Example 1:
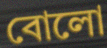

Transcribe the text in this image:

বোলো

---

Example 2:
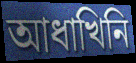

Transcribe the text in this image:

আধাখিনি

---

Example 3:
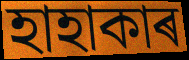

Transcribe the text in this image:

হাহাকাৰ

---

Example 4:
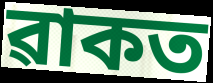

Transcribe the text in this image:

ৱাকত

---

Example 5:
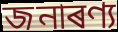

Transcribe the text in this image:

জনাৰণ্য